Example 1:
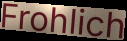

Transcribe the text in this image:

Frohlich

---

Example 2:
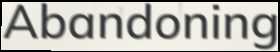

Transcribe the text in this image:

Abandoning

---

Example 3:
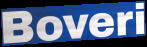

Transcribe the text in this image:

Boveri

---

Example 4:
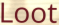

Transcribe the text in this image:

Loot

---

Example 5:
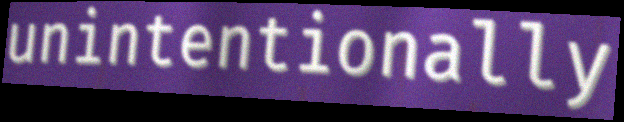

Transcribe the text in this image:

unintentionally